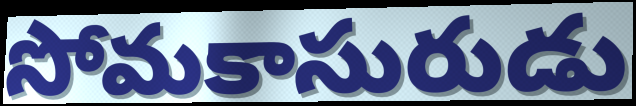
సోమకాసురుడు